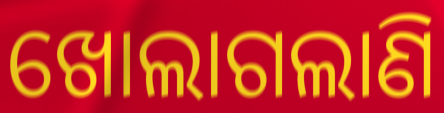
ଖୋଲାଗଲାଣି